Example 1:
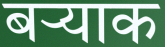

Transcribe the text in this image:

बऱ्याक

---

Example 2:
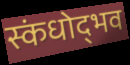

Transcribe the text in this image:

स्कंधोद्भव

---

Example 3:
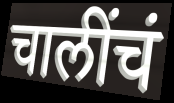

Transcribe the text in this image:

चालींचं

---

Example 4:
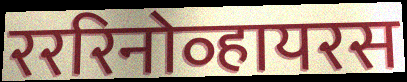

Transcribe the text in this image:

रररिनोव्हायरस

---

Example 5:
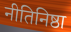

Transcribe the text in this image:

नीतिनिष्ठा